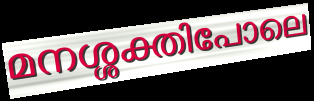
മനശ്ശക്തിപോലെ